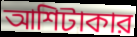
আশিটাকার